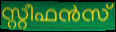
സ്റ്റീഫൻസ്